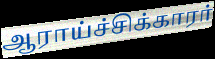
ஆராய்ச்சிக்காரர்